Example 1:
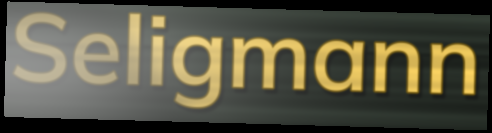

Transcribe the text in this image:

Seligmann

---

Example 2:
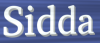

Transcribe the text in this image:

Sidda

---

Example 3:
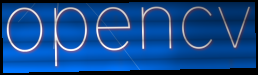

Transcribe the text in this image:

opencv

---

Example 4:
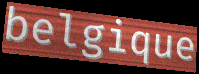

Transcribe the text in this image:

belgique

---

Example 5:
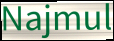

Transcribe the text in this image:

Najmul